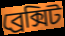
ব্রেক্সিট